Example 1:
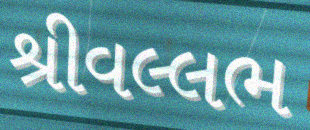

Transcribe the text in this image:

શ્રીવલ્લભ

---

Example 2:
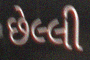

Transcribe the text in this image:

છેલ્લી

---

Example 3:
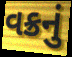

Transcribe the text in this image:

વક્રનું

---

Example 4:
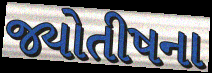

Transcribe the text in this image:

જ્યોતીષના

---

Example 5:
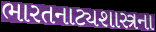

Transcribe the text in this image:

ભારતનાટ્યશાસ્ત્રના